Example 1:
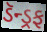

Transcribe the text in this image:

ડૅન્ડ્રફ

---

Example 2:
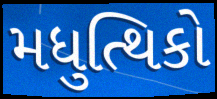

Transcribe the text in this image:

મધુત્થિકો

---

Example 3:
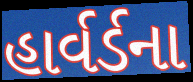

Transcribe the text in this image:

હાર્વર્ડના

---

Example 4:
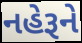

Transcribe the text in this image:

નહેરૂને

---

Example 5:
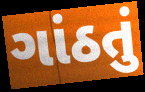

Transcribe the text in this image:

ગાંઠતું